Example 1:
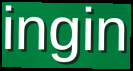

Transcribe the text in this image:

ingin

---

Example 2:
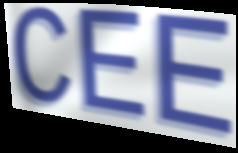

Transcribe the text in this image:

CEE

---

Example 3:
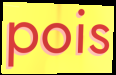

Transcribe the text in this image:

pois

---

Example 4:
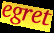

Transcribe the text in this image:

egret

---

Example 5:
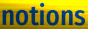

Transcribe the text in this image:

notions